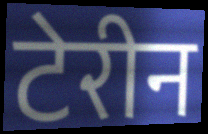
टेरीन